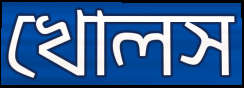
খোলস